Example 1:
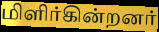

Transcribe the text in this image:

மிளிர்கின்றனர்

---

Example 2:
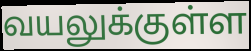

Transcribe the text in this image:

வயலுக்குள்ள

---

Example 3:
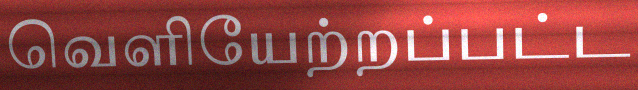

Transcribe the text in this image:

வெளியேற்றப்பட்ட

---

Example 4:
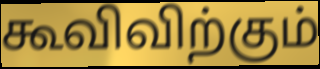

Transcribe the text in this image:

கூவிவிற்கும்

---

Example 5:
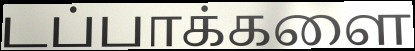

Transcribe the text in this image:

டப்பாக்களை